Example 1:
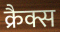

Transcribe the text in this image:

क्रैक्स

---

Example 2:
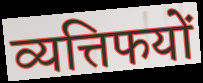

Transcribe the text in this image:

व्यत्तिफयों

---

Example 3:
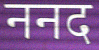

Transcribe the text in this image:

ननद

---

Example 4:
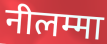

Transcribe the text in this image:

नीलम्मा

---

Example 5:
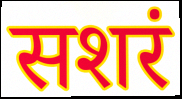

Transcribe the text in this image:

सशरं